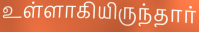
உள்ளாகியிருந்தார்